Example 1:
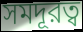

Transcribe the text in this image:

সমদূরত্ব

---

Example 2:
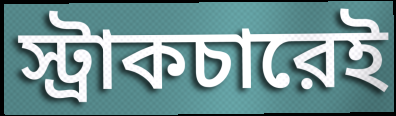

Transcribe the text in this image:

স্ট্রাকচারেই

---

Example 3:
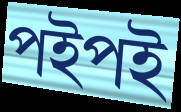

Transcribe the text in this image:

পইপই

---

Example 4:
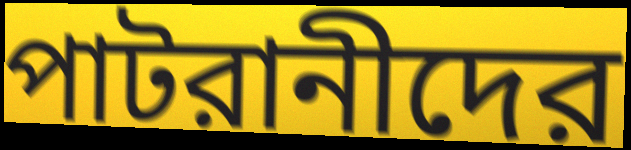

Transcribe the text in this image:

পাটরানীদের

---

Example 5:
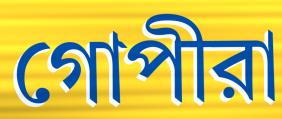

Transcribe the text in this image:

গোপীরা